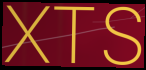
XTS